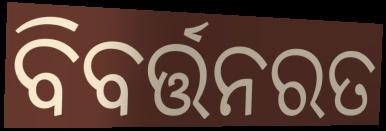
ବିବର୍ତ୍ତନରତ